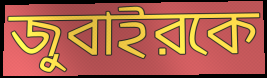
জুবাইরকে